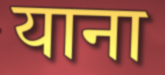
याना